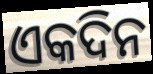
ଏକଦିନ